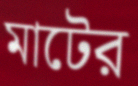
মাটের